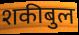
शकीबुल